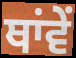
ਥਾਂਵੇਂ